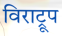
विराट्रूप